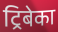
ट्रिबेका